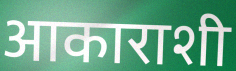
आकाराशी